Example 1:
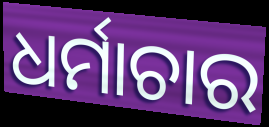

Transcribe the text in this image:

ଧର୍ମାଚାର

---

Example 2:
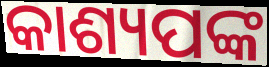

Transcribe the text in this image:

କାଶ୍ୟପଙ୍କ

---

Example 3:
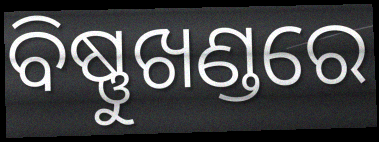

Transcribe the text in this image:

ବିଷ୍ଣୁଖଣ୍ଡରେ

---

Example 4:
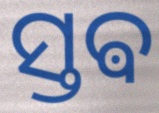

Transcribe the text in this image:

ସ୍ତଵ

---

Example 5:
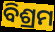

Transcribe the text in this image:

ବିଶ୍ରମ